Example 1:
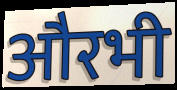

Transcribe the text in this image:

औरभी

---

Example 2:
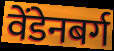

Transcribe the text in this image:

वेंडेनबर्ग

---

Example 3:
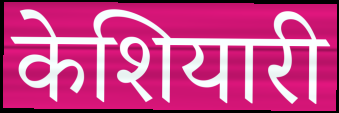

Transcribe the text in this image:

केशियारी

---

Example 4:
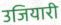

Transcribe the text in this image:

उजियारी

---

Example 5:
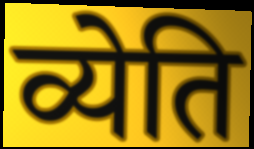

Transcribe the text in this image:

व्येति